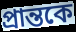
প্রান্তকে